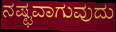
ನಷ್ಟವಾಗುವುದು